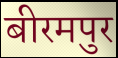
बीरमपुर